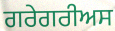
ਗਰੇਗਰੀਅਸ